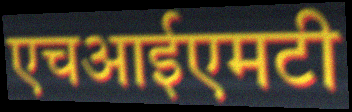
एचआईएमटी